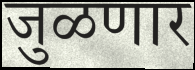
जुळणार